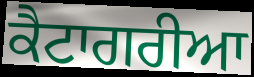
ਕੈਟਾਗਰੀਆ